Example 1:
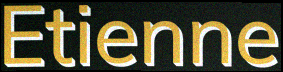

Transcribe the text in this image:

Etienne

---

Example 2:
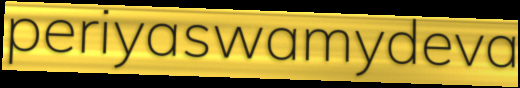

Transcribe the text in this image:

periyaswamydeva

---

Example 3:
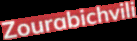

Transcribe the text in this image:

Zourabichvili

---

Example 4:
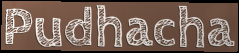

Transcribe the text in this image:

Pudhacha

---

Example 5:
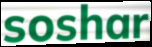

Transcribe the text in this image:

soshar